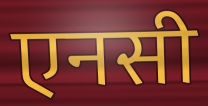
एनसी